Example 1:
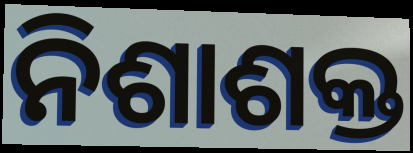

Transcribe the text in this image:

ନିଶାଶକ୍ତ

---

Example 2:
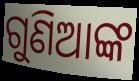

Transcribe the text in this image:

ଗୁଣିଆଙ୍କ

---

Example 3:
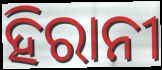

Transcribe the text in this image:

ହିରାନୀ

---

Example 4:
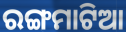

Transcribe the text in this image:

ରଙ୍ଗମାଟିଆ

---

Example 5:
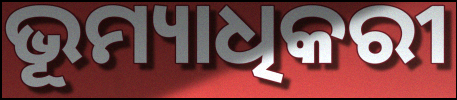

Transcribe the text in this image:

ଭୂମ୍ୟାଧିକରୀ